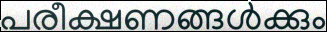
പരീക്ഷണങ്ങൾക്കും